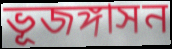
ভূজঙ্গাসন